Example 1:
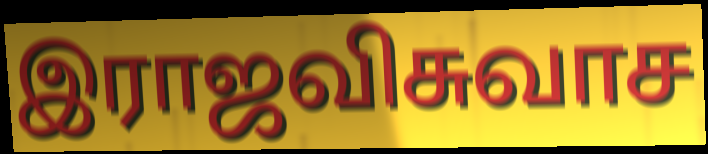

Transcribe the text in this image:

இராஜவிசுவாச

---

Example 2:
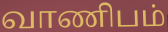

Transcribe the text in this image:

வாணிபம்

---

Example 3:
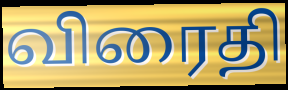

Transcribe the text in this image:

விரைதி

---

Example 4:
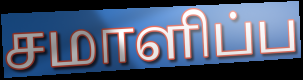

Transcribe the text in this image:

சமாளிப்ப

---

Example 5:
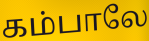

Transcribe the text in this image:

கம்பாலே